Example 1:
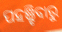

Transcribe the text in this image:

ପହଞ୍ଚିବାରୁ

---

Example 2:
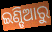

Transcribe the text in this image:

ଇଣ୍ଡିଆରୁ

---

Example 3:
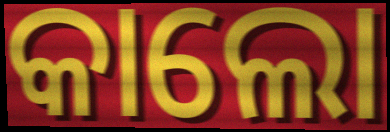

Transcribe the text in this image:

କାଲୋ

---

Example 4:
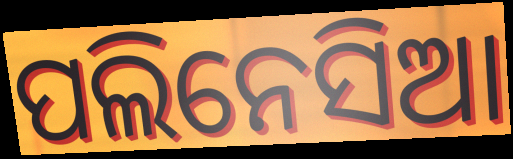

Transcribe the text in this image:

ପଲିନେସିଆ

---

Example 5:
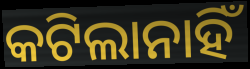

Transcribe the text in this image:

କଟିଲାନାହିଁ